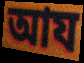
আয